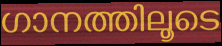
ഗാനത്തിലൂടെ